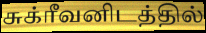
சுக்ரீவனிடத்தில்